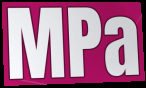
MPa